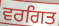
ਵਰਗਿਤ